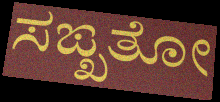
ಸಙ್ಖತೋ